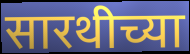
सारथीच्या